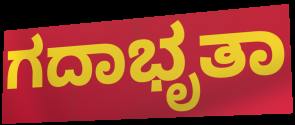
ಗದಾಭೃತಾ